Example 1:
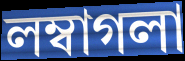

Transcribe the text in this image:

লম্বাগলা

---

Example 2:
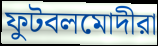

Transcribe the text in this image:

ফুটবলমোদীরা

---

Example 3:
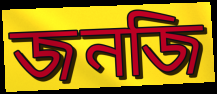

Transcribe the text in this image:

জনজি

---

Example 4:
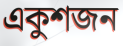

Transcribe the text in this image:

একুশজন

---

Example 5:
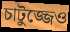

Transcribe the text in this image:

চাটুজ্জেও